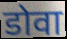
डोवा